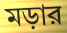
মড়ার